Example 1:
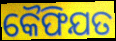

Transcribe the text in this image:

କୈଫିଯତ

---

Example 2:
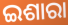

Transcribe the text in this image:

ଇଶାରା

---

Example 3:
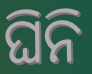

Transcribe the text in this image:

ଘିନି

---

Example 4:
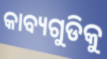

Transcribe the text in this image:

କାବ୍ୟଗୁଡିକୁ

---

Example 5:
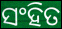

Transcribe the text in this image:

ସଂହିତ